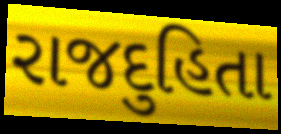
રાજદુહિતા